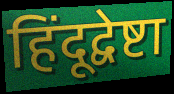
हिंदूद्वेष्टा